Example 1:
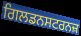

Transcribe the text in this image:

ਗਿਲਡਨਸਟਰਨਜ਼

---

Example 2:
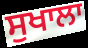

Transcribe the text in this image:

ਸੁਖਾਲਾ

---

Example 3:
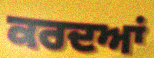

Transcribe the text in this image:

ਕਰਦਆਂ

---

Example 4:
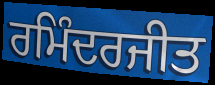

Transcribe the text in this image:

ਰਮਿੰਦਰਜੀਤ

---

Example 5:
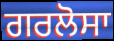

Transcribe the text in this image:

ਗਰਲੋਸਾ